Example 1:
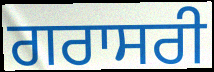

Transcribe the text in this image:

ਗਰਾਸਰੀ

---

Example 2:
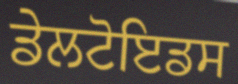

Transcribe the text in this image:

ਡੇਲਟੋਇਡਸ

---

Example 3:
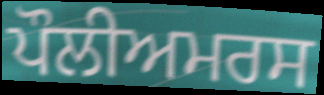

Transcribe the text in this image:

ਪੌਲੀਅਮਰਸ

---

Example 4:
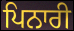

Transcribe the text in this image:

ਪਿਨਾਰੀ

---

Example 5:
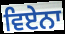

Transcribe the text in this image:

ਵਿਏਨਾ